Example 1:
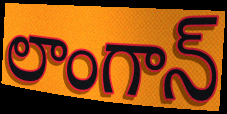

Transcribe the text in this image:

లాంగాన్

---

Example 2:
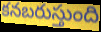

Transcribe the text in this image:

కనబరుస్తుంది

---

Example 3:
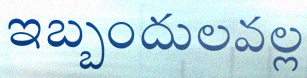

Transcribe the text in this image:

ఇబ్బందులవల్ల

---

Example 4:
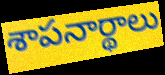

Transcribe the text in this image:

శాపనార్థాలు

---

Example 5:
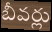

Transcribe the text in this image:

బీవర్లు